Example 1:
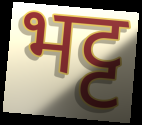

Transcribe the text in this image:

भट्ट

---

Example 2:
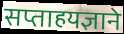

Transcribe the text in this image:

सप्ताहयज्ञाने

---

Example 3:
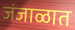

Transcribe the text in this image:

जंजाळात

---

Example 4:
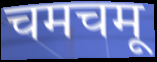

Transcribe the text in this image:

चमचमू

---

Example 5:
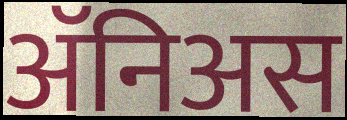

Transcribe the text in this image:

ॲनिअस